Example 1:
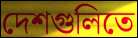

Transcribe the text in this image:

দেশগুলিতে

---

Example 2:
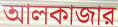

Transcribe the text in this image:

আলকাজার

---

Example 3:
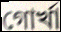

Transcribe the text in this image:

গোর্খা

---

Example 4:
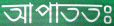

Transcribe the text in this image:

আপাততঃ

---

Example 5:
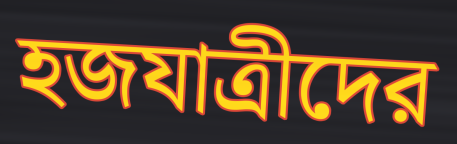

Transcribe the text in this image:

হজযাত্রীদের